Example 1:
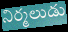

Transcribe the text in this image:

నిర్మలుడు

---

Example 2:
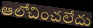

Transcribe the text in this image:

ఆలోచించలేదు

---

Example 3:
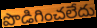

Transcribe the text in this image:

పొడిగించలేదు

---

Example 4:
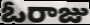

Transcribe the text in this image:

ఓరాజు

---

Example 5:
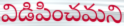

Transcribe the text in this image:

విడిపించమని